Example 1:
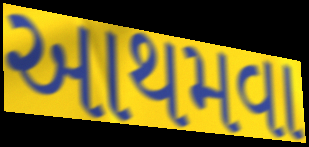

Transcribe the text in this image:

આથમવા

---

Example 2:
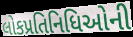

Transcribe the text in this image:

લોકપ્રતિનિધિઓની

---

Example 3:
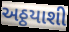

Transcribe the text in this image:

અઠ્ઠયાશી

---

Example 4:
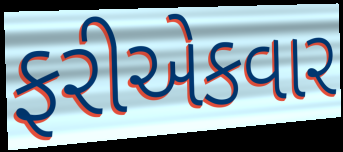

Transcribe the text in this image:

ફરીએકવાર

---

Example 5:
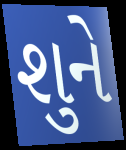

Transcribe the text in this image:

શુને